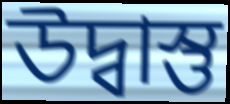
উদ্বাস্তু